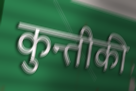
कुन्तीकी